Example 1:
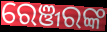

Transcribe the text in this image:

ରେଞ୍ଜରଙ୍କ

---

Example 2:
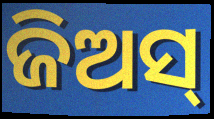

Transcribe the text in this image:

ଜିଅସ୍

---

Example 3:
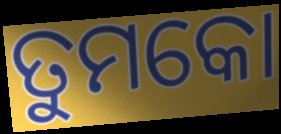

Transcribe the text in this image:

ତୁମକୋ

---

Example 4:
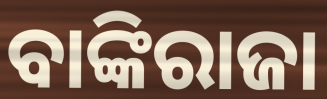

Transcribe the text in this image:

ବାଙ୍କିରାଜା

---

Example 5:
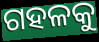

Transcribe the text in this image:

ଗହଳକୁ